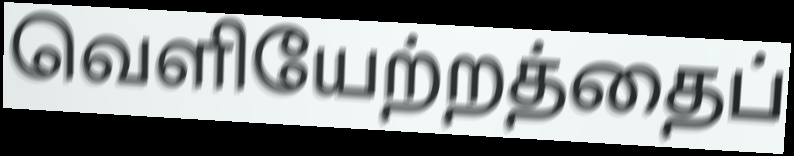
வெளியேற்றத்தைப்